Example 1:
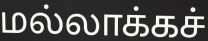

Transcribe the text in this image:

மல்லாக்கச்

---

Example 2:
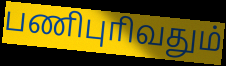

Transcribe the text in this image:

பணிபுரிவதும்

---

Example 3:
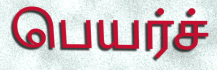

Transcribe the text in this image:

பெயர்ச்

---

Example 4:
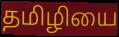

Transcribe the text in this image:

தமிழியை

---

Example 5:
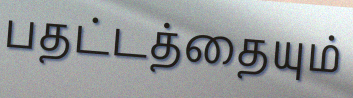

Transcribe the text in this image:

பதட்டத்தையும்